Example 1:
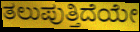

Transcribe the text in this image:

ತಲುಪುತ್ತಿದೆಯೇ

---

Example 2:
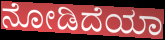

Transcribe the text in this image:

ನೋಡಿದೆಯಾ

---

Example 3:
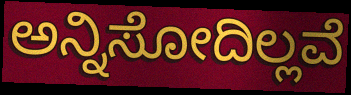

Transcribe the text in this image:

ಅನ್ನಿಸೋದಿಲ್ಲವೆ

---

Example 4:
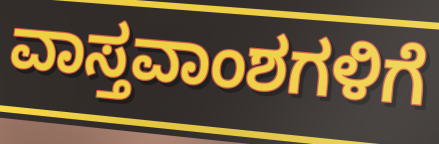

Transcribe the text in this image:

ವಾಸ್ತವಾಂಶಗಳಿಗೆ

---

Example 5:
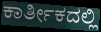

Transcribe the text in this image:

ಕಾರ್ತೀಕದಲ್ಲಿ